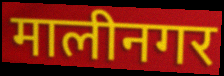
मालीनगर